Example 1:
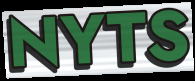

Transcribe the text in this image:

NYTS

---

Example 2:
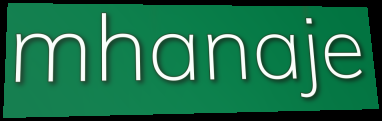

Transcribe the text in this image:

mhanaje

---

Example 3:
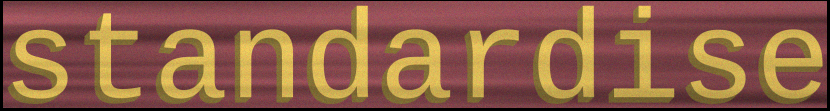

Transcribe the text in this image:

standardise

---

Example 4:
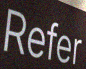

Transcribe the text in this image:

Refer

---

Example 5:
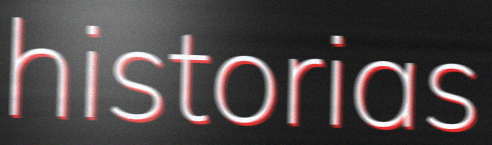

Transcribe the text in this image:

historias